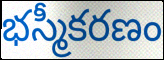
భస్మీకరణం